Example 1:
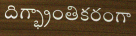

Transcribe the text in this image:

దిగ్భ్రాంతికరంగా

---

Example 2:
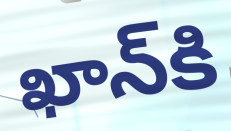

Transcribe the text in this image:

ఖాన్‌కి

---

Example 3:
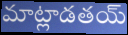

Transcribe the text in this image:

మాట్లాడతయ్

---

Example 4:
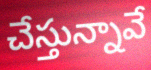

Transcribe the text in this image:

చేస్తున్నావే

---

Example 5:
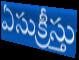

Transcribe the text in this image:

ఏసుక్రీస్తు